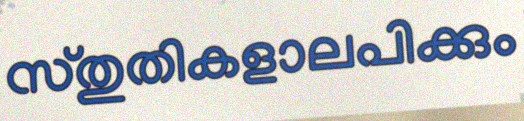
സ്തുതികളാലപിക്കും